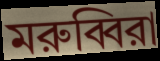
মরুব্বিরা